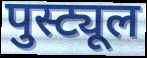
पुस्ट्यूल